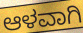
ಆಳವಾಗಿ